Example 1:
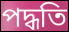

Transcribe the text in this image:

পদ্ধতি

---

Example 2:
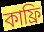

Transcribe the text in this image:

কাফ্রি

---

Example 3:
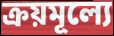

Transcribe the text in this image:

ক্রয়মূল্যে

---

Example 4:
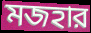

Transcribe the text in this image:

মজহার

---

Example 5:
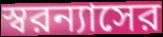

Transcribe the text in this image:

স্বরন্যাসের